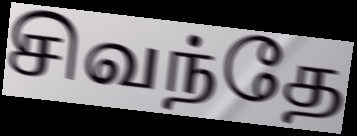
சிவந்தே